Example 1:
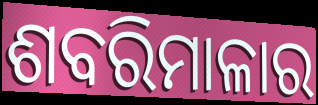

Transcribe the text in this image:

ଶବରିମାଳାର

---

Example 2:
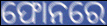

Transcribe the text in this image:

ଫୋନରେ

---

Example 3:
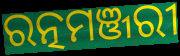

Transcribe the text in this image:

ରତ୍ନମଞ୍ଜରୀ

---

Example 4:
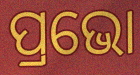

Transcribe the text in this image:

ପ୍ରଭୋ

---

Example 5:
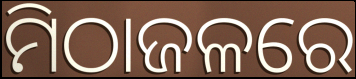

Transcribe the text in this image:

ମିଠାଜଳରେ